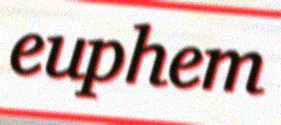
euphem